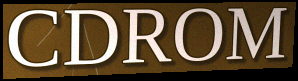
CDROM